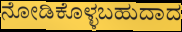
ನೋಡಿಕೊಳ್ಳಬಹುದಾದ